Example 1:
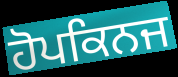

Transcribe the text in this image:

ਹੋਪਕਿਨਜ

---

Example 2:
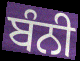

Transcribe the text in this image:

ਬੰਨੀ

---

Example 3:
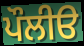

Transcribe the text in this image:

ਪੌਲੀੳ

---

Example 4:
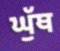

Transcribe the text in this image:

ਘੁੱਥ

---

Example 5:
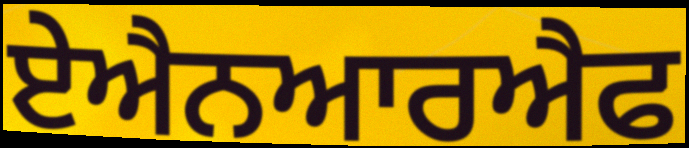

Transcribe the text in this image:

ਏਐਨਆਰਐਫ